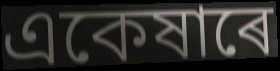
একেষাৰে